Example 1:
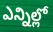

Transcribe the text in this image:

ఎన్నిల్లో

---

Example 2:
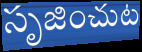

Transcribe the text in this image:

సృజించుట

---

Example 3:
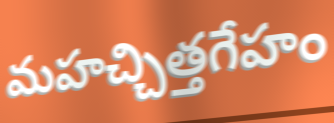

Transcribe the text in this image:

మహచ్చిత్తగేహం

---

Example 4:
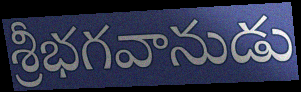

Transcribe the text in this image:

శ్రీభగవానుడు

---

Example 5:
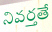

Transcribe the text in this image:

నివర్తతే